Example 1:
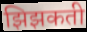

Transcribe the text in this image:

झिझकती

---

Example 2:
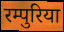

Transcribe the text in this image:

रम्पुरिया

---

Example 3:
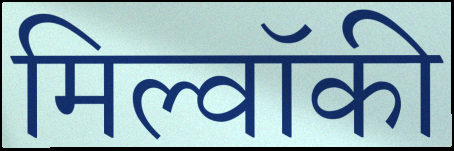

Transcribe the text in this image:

मिल्वॉकी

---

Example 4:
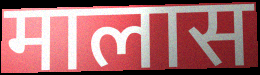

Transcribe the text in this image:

मालास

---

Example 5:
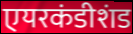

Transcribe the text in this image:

एयरकंडीशंड